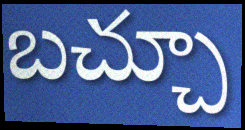
బచ్చూ